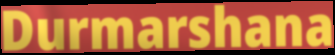
Durmarshana